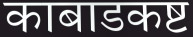
काबाडकष्ट